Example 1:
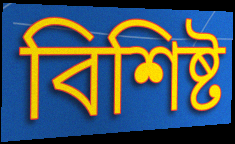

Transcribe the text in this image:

বিশিষ্ট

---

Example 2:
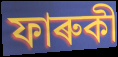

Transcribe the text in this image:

ফাৰুকী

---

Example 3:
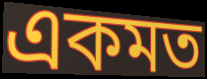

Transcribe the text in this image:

একমত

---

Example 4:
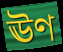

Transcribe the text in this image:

ঊণ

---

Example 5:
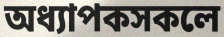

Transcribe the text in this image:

অধ্যাপকসকলে